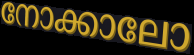
നോക്കാലോ